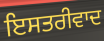
ਇਸਤਰੀਵਾਦ